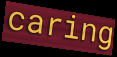
caring